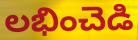
లభించెడి